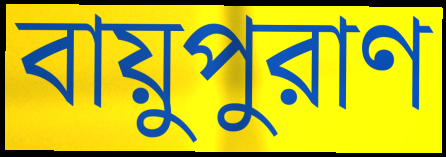
বায়ুপুরাণ